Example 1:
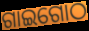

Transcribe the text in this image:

ଗାଇଗୋଠ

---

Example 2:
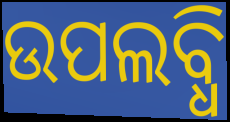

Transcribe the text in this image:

ଉପଲବ୍ଧି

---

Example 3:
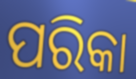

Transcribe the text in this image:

ପରିକା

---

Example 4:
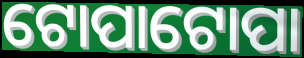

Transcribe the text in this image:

ଟୋପାଟୋପା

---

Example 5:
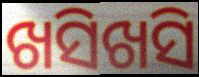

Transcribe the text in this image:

ଖସିଖସି